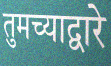
तुमच्याद्वारे